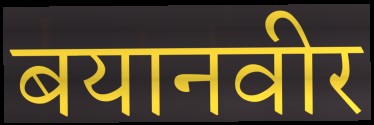
बयानवीर